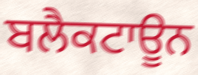
ਬਲੈਕਟਾਊਨ